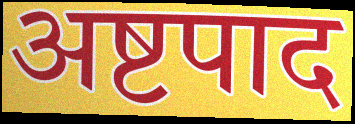
अष्टपाद